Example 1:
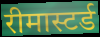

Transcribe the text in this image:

रीमास्टर्ड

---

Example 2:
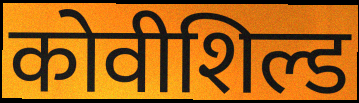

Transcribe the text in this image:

कोवीशिल्ड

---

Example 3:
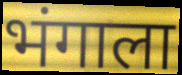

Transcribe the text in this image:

भंगाला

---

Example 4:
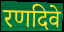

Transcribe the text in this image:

रणदिवे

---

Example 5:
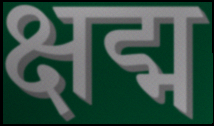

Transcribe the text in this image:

क्षद्म